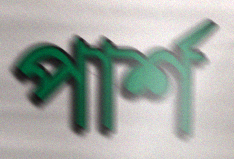
পার্শ